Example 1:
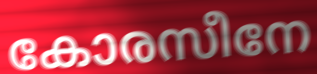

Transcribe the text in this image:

കോരസീനേ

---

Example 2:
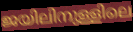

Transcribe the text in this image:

ജയിലിനുള്ളിലെ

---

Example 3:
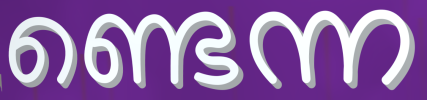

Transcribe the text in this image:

ണ്ടെന്ന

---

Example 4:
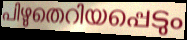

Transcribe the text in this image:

പിഴുതെറിയപ്പെടും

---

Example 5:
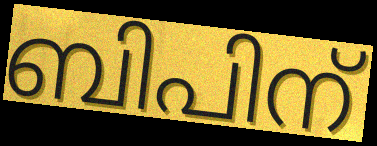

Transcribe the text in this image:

ബിപിന്